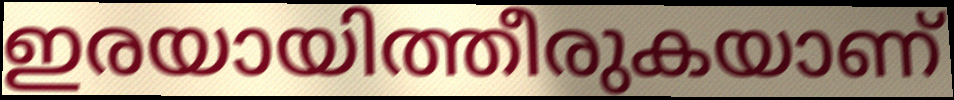
ഇരയായിത്തീരുകയാണ്